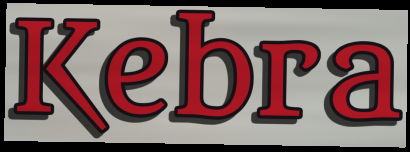
Kebra